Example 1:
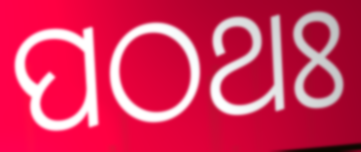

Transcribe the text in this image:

ପଠଥଃ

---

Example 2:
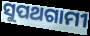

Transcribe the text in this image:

ସୁପଥଗାମୀ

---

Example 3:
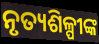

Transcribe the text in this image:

ନୃତ୍ୟଶିଳ୍ପୀଙ୍କ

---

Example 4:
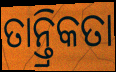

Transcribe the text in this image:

ତାନ୍ତ୍ରିକତା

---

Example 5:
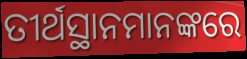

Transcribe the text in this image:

ତୀର୍ଥସ୍ଥାନମାନଙ୍କରେ